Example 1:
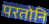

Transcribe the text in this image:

परतोनि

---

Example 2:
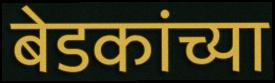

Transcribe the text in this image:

बेडकांच्या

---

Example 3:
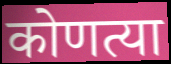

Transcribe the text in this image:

कोणत्या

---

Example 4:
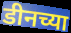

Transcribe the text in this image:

डीनच्या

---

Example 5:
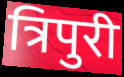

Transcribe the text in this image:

त्रिपुरी